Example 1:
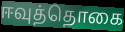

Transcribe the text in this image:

ஈவுத்தொகை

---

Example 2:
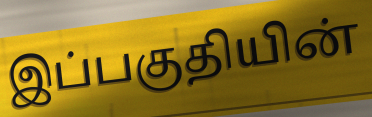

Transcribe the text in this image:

இப்பகுதியின்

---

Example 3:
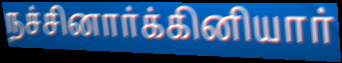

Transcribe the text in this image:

நச்சினார்க்கினியார்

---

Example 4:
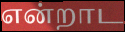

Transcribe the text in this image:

என்றாட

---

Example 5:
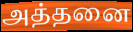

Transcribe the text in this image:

அத்தனை